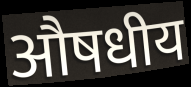
औषधीय